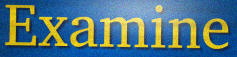
Examine